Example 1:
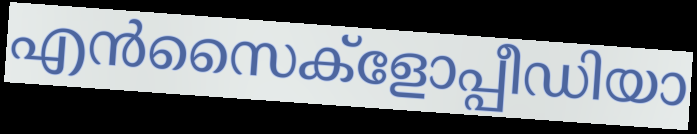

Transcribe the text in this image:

എൻസൈക്ളോപ്പീഡിയാ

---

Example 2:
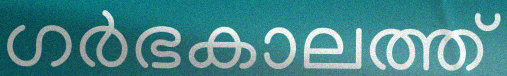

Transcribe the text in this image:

ഗർഭകാലത്ത്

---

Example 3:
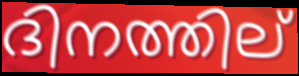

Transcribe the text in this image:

ദിനത്തില്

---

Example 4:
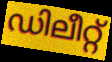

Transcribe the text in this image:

ഡിലീറ്റ്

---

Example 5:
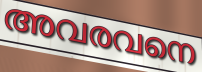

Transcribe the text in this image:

അവരവനെ